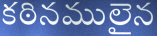
కఠినములైన